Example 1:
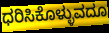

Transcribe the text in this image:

ಧರಿಸಿಕೊಳ್ಳುವದೂ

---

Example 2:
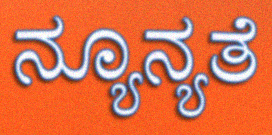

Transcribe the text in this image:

ನ್ಯೂನ್ಯತೆ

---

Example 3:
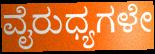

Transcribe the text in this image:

ವೈರುಧ್ಯಗಳೇ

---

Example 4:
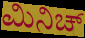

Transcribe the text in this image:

ಮಿನಿಚ್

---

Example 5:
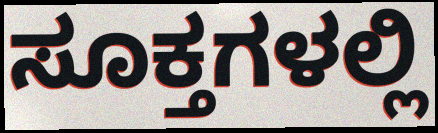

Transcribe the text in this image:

ಸೂಕ್ತಗಳಲ್ಲಿ